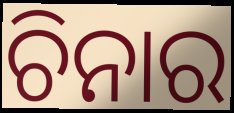
ଚିନାର